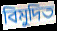
বিমুদিত